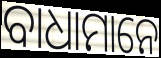
ବାଧାମାନେ